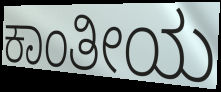
ಕಾಂತೀಯ